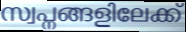
സ്വപ്നങ്ങളിലേക്ക്